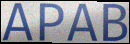
APAB